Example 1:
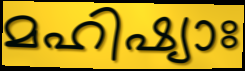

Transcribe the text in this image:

മഹിഷ്യാഃ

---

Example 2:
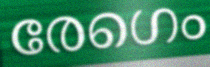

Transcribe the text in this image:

രേഗെം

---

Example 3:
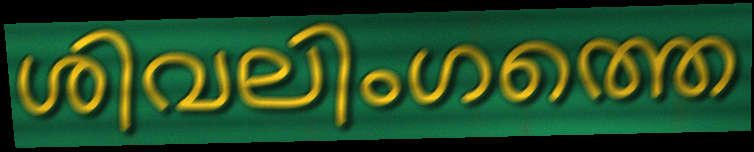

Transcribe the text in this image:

ശിവലിംഗത്തെ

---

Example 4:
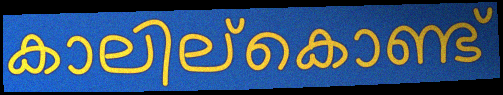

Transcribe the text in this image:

കാലില്കൊണ്ട്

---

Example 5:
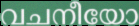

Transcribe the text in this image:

വചനീയോ